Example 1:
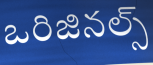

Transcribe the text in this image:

ఒరిజినల్స్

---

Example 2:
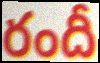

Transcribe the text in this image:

రందీ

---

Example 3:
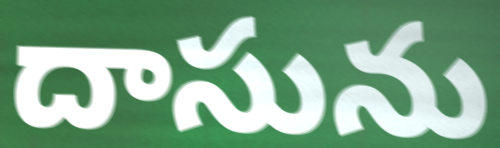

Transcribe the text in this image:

దాసును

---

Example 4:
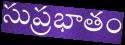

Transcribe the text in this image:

సుప్రభాతం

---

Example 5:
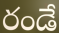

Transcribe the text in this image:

రండే